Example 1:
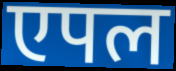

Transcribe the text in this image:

एपल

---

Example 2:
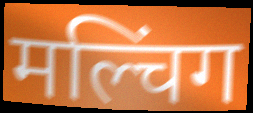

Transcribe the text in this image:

मल्चिंग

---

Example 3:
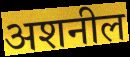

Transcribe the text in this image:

अशनील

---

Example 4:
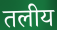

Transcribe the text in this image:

तलीय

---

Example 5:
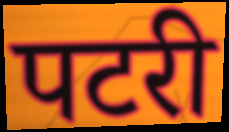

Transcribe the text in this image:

पटरी